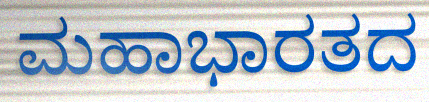
ಮಹಾಭಾರತದ